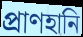
প্রাণহানি